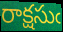
రాక్షసుఁ